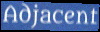
Adjacent